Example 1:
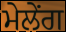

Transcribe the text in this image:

ਮੇਲੇਂਗ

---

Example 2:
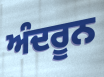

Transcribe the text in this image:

ਅੰਦਰੂਨ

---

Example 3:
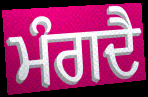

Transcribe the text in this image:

ਮੰਗਦੈ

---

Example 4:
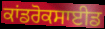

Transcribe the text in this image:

ਕਾਂਡਰੋਕਸਾਈਡ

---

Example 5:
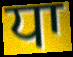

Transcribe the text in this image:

ਧਾ